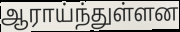
ஆராய்ந்துள்ளன